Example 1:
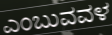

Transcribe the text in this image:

ಎಂಬುವವಳ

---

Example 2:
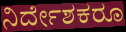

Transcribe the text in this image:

ನಿರ್ದೇಶಕರೂ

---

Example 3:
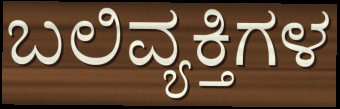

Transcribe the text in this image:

ಬಲಿವ್ಯಕ್ತಿಗಳ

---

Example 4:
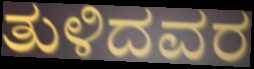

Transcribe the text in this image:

ತುಳಿದವರ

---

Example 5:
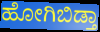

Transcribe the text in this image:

ಹೋಗಿಬಿಡ್ತಾ